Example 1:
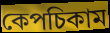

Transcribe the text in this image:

কেপচিকাম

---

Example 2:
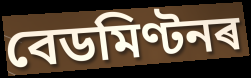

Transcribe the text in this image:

বেডমিণ্টনৰ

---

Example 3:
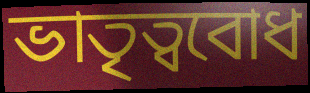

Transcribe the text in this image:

ভাতৃত্ববোধ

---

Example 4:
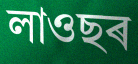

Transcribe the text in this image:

লাওছৰ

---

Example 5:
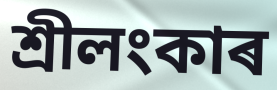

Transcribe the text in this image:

শ্ৰীলংকাৰ